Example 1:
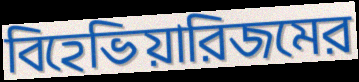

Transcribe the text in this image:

বিহেভিয়ারিজমের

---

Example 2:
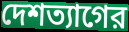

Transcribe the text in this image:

দেশত্যাগের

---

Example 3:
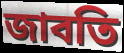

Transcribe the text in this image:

জাবতি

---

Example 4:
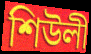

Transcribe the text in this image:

শিউলী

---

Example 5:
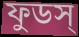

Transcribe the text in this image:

ফুডস্